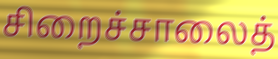
சிறைச்சாலைத்